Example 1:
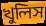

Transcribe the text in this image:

খুলিস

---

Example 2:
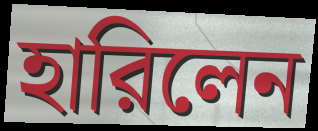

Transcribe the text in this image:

হারিলেন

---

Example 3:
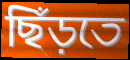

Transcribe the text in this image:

ছিঁড়তে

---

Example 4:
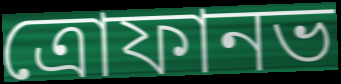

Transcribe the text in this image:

ত্রোফানভ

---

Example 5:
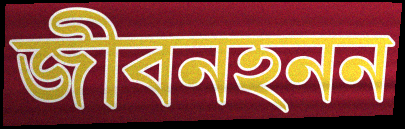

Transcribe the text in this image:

জীবনহনন